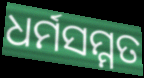
ଧର୍ମସମ୍ମତ